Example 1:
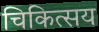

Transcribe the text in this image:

चिकित्सय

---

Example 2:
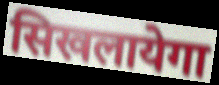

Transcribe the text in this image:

सिखलायेगा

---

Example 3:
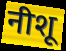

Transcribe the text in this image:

नीशू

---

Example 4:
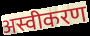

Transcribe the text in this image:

अस्वीकरण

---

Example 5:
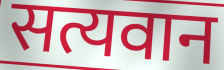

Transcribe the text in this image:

सत्यवान